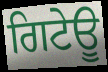
ਗਿਟੇਊ